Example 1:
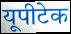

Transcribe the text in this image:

यूपीटेक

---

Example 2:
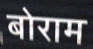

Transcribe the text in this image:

बोराम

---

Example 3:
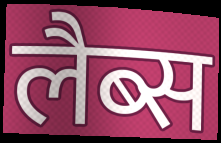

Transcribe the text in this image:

लैब्स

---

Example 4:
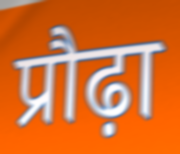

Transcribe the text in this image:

प्रौढ़ा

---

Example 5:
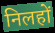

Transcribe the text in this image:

निलहों